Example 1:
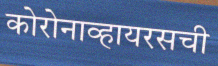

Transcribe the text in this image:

कोरोनाव्हायरसची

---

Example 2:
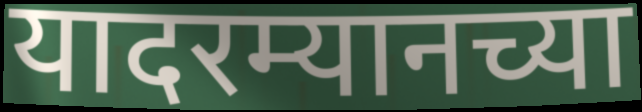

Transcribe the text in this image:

यादरम्यानच्या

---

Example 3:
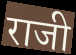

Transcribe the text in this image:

राजी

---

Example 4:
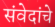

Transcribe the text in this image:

संवेदांचे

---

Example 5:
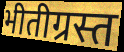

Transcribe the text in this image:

भीतीग्रस्त